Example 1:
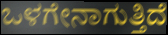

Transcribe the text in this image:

ಒಳಗೇನಾಗುತ್ತಿದೆ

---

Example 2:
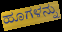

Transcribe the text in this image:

ಹೂಗಳನ್ನು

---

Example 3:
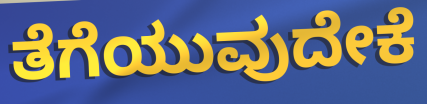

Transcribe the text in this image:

ತೆಗೆಯುವುದೇಕೆ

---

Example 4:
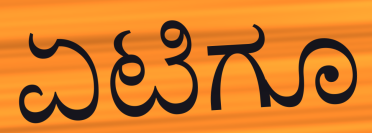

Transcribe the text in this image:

ಏಟಿಗೂ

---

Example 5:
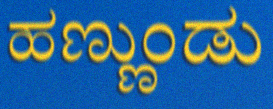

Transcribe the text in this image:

ಹಣ್ಣುಂಡು